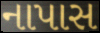
નાપાસ